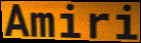
Amiri